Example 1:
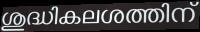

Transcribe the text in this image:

ശുദ്ധികലശത്തിന്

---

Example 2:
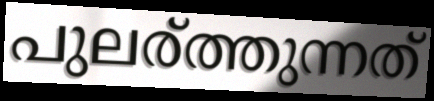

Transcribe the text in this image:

പുലര്ത്തുന്നത്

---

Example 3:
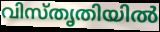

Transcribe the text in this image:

വിസ്തൃതിയിൽ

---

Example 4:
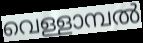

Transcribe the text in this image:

വെള്ളാമ്പൽ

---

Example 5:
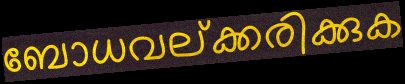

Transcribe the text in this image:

ബോധവല്ക്കരിക്കുക